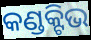
କଣ୍ଡକ୍ଟିଭ